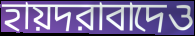
হায়দরাবাদেও